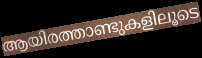
ആയിരത്താണ്ടുകളിലൂടെ